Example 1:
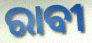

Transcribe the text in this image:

ରାବୀ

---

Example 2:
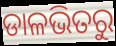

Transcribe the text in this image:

ଡାଳଭିତରୁ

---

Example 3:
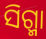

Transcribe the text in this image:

ସିଗ୍ମା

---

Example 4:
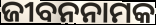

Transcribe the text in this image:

ଜୀବନନାମକ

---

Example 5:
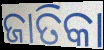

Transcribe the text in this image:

ଜାତିକା